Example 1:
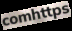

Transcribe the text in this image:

comhttps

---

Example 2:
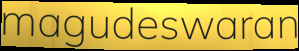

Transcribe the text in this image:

magudeswaran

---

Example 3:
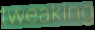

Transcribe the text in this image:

tweaking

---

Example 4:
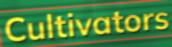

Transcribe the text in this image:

Cultivators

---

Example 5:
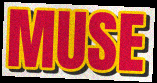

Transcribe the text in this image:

MUSE